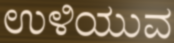
ಉಳಿಯುವ